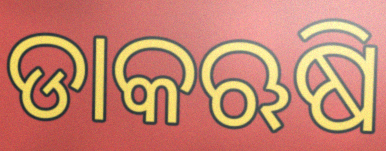
ଡାକଋଷି